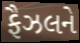
ફૈઝલને